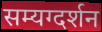
सम्‍यग्‍दर्शन